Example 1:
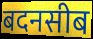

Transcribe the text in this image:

बदनसीब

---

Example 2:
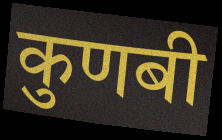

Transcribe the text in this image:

कुणबी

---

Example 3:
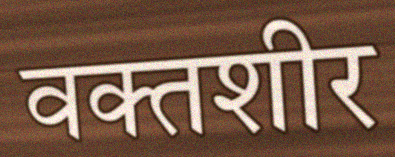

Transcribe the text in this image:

वक्तशीर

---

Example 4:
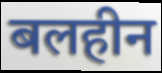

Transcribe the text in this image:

बलहीन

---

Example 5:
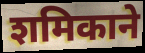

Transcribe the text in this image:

शमिकाने